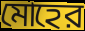
মোহের